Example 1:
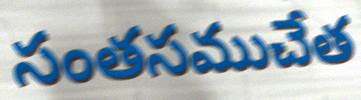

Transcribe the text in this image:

సంతసముచేత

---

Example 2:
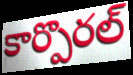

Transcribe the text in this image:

కార్పొరల్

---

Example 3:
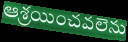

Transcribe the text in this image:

ఆశ్రయించవలెను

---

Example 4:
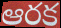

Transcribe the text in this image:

ఆరక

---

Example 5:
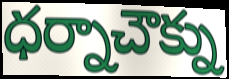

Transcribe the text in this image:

ధర్నాచౌక్ను